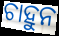
ଚାହୁନ